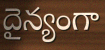
దైన్యంగా